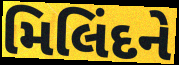
મિલિંદને